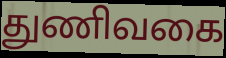
துணிவகை